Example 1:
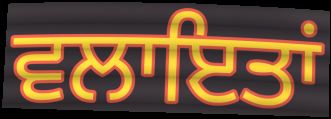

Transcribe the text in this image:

ਵਲਾਇਤਾਂ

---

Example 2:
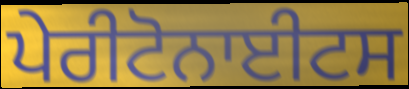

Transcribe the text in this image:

ਪੇਰੀਟੋਨਾਈਟਸ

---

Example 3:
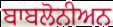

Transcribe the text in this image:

ਬਾਬਲੋਨੀਅਨ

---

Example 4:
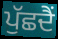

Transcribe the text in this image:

ਪੁੱਛਦੈਂ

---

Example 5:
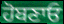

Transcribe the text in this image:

ਹੋਬਣਾਓ